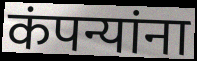
कंपन्यांना